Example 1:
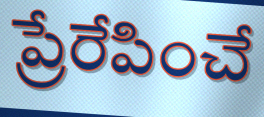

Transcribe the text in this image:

ప్రేరేపించే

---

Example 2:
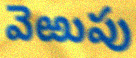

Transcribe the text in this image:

వెఱుపు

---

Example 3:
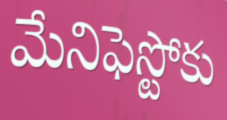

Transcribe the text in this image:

మేనిఫెస్టోకు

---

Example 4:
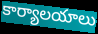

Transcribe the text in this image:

కార్యాలయాలు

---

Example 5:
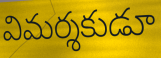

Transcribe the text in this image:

విమర్శకుడూ